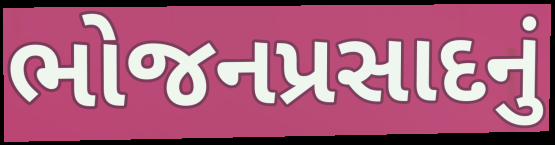
ભોજનપ્રસાદનું